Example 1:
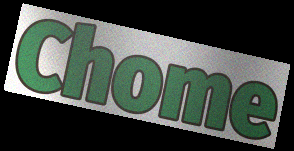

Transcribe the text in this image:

Chome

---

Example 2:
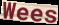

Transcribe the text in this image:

Wees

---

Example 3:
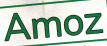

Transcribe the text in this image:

Amoz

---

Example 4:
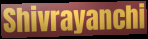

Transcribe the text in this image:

Shivrayanchi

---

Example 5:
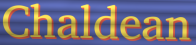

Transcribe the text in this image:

Chaldean